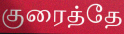
குரைத்தே